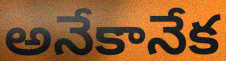
అనేకానేక